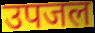
उपजल